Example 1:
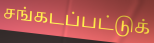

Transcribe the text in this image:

சங்கடப்பட்டுக்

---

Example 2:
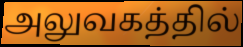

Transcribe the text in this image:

அலுவகத்தில்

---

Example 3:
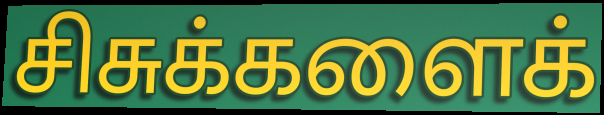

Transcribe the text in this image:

சிசுக்களைக்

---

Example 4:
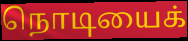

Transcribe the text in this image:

நொடியைக்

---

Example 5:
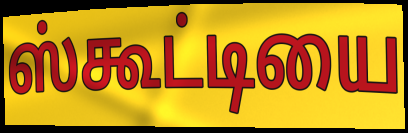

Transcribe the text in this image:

ஸ்கூட்டியை